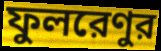
ফুলরেণুর